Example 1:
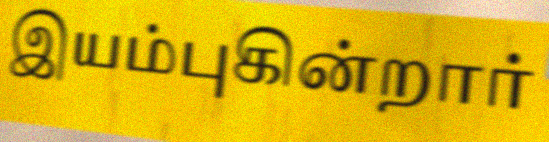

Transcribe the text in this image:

இயம்புகின்றார்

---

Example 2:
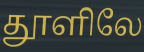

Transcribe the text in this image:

தூளிலே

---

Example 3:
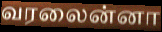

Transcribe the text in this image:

வரலைன்னா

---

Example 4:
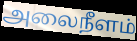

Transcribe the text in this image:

அலைநீளம்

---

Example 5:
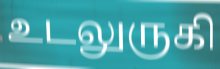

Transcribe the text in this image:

உடலுருகி